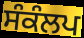
ਸੰਕੰਲਪ